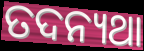
ତଦନ୍ୟଥା